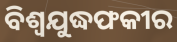
ବିଶ୍ୱଯୁଦ୍ଧଫକୀର